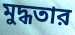
মুদ্ধতার